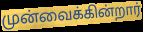
முன்வைக்கின்றார்